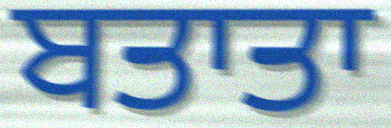
ਬਤਾਤਾ